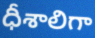
ధీశాలిగా